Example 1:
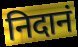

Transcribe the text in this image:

निदानं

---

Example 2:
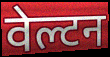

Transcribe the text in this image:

वेल्टन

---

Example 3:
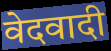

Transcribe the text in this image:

वेदवादी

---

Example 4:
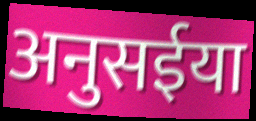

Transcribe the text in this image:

अनुसईया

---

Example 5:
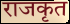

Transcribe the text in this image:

राजकृत